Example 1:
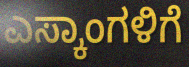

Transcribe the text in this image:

ಎಸ್ಕಾಂಗಳಿಗೆ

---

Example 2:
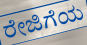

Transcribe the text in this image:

ರೇಜಿಗೆಯ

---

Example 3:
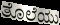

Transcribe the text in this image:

ತೊಲೆಯು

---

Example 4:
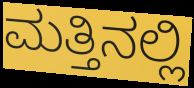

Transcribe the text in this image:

ಮತ್ತಿನಲ್ಲಿ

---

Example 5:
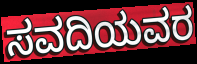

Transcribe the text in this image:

ಸವದಿಯವರ